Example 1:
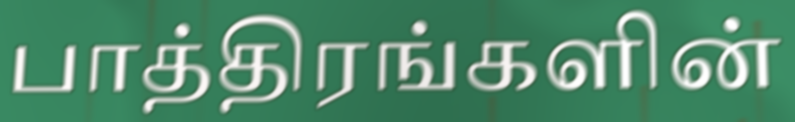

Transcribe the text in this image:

பாத்திரங்களின்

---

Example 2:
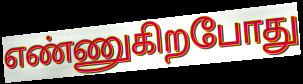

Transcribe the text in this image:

எண்ணுகிறபோது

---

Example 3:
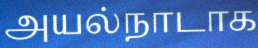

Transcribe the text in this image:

அயல்நாடாக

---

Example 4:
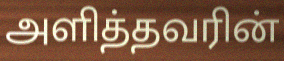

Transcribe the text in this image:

அளித்தவரின்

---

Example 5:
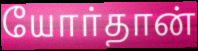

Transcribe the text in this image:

யோர்தான்